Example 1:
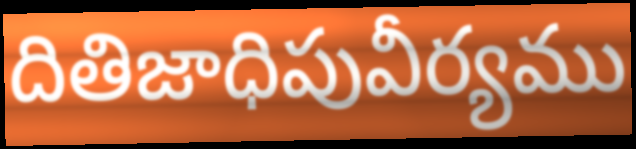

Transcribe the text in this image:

దితిజాధిపువీర్యము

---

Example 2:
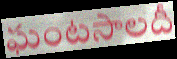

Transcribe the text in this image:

ఘంటసాలదీ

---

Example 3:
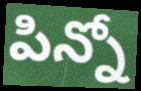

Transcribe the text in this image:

పిన్నో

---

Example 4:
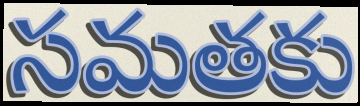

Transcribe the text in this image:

సమతకు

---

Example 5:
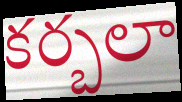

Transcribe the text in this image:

కర్బలా